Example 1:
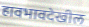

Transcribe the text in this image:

हावभावदेखील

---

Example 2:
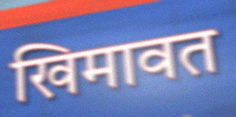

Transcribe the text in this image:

खिमावत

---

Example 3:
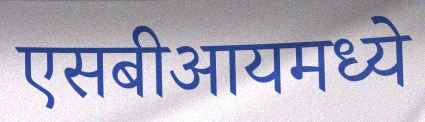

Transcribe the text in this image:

एसबीआयमध्ये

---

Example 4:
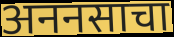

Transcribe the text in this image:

अननसाचा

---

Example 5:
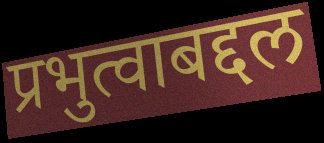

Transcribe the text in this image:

प्रभुत्वाबद्दल